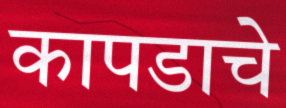
कापडाचे